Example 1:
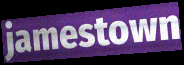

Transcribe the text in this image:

jamestown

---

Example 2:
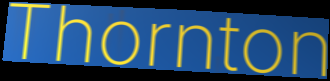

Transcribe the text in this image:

Thornton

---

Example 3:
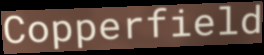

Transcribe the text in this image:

Copperfield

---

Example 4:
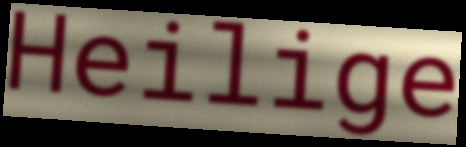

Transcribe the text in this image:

Heilige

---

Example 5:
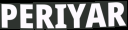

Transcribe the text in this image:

PERIYAR